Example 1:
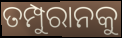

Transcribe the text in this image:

ତମ୍ପୁରାନକୁ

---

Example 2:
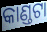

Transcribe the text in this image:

କାଣ୍ଡଟା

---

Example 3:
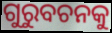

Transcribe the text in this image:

ଗୁରୁବଚନକୁ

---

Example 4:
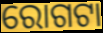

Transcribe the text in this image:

ରୋଗଟା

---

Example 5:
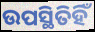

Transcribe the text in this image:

ଉପସ୍ଥିତିହିଁ